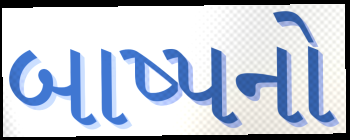
બાષ્પનો